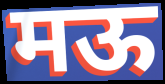
मऊ